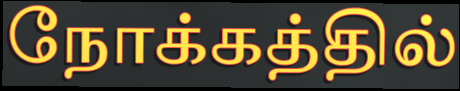
நோக்கத்தில்